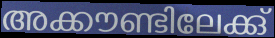
അക്കൗണ്ടിലേക്കു്